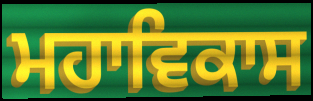
ਮਹਾਵਿਕਾਸ